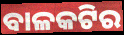
ବାଳକଟିର